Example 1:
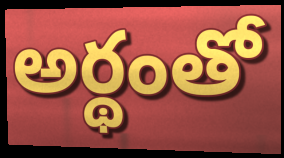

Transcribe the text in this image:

అర్థంతో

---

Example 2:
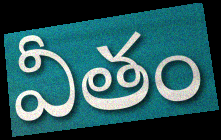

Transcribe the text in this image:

వీతం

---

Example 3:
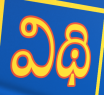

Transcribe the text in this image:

విథి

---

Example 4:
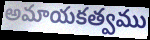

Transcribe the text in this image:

అమాయకత్వము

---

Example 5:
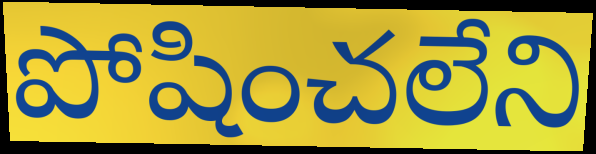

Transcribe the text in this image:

పోషించలేని